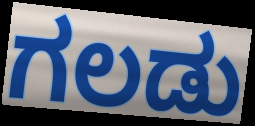
ಗಲಡು